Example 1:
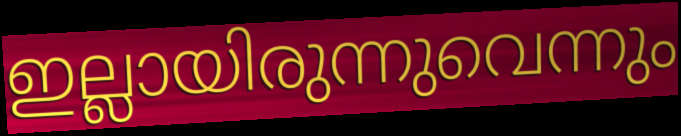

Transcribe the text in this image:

ഇല്ലായിരുന്നുവെന്നും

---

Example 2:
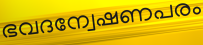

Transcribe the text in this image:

ഭവദന്വേഷണപരം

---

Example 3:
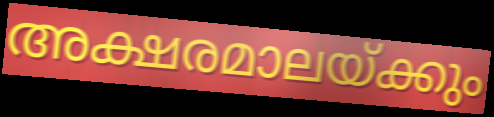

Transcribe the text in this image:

അക്ഷരമാലയ്ക്കും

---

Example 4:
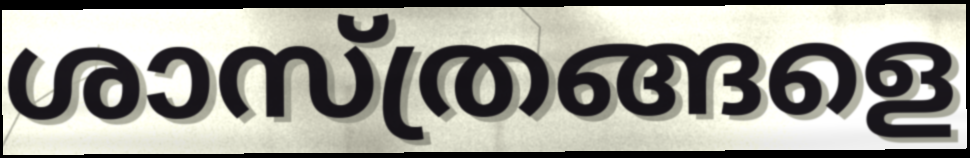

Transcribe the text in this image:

ശാസ്ത്രങ്ങളെ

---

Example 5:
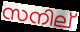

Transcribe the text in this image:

സനില്